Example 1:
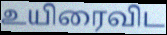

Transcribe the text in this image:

உயிரைவிட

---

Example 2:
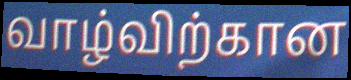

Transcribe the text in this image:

வாழ்விற்கான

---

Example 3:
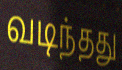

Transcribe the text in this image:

வடிந்தது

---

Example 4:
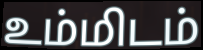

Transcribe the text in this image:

உம்மிடம்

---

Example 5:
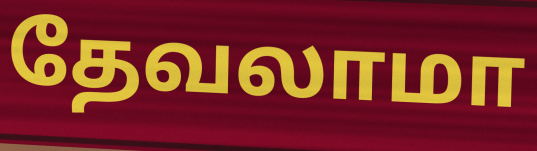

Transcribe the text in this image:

தேவலாமா